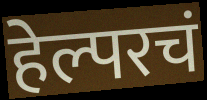
हेल्परचं